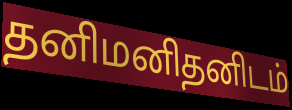
தனிமனிதனிடம்